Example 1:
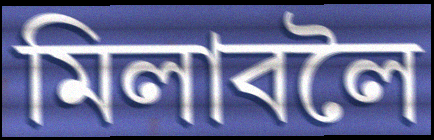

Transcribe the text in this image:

মিলাবলৈ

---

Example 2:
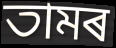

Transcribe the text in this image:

তামৰ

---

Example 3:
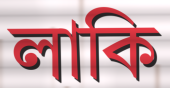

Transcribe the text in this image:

লাকি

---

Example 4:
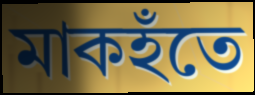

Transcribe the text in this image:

মাকহঁতে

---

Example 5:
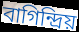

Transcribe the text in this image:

বাগিন্দ্ৰিয়